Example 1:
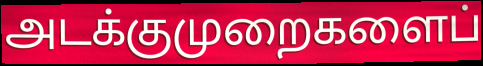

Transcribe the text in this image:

அடக்குமுறைகளைப்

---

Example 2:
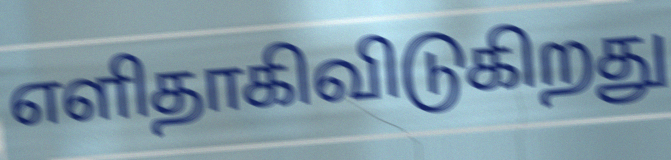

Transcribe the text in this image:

எளிதாகிவிடுகிறது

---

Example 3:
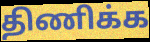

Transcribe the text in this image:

திணிக்க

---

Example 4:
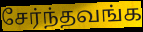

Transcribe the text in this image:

சேர்ந்தவங்க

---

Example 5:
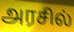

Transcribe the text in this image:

அரசில்